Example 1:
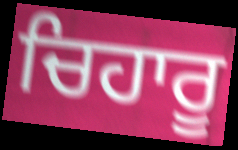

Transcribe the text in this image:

ਚਿਹਾਰੂ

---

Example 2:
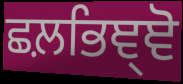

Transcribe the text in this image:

ਛਲ਼ਭਿਞ੍ਞੋ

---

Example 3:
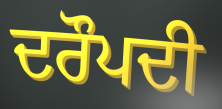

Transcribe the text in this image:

ਦਰੌਪਦੀ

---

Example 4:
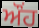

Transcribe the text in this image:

ਔਂਹ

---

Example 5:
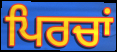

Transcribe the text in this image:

ਪਿਰਚਾਂ